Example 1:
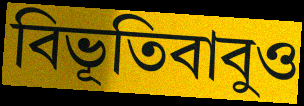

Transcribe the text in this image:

বিভূতিবাবুও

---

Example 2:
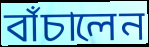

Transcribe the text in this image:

বাঁচালেন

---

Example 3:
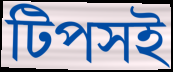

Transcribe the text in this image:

টিপসই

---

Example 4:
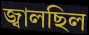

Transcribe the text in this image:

জ্বালছিল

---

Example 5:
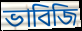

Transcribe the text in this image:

ভাবিজি